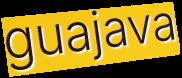
guajava